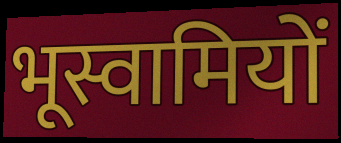
भूस्वामियों